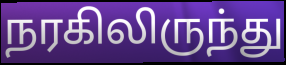
நரகிலிருந்து